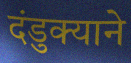
दंडुक्याने